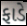
ફાડે